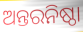
ଅନ୍ତରନିଷ୍ଠା